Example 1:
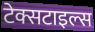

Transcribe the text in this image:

टेक्सटाइल्स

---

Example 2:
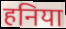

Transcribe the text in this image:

हनिया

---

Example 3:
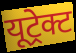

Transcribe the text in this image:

यूट्रेक्ट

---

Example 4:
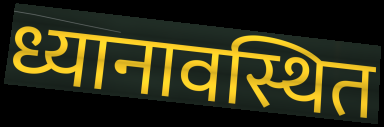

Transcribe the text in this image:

ध्यानावस्थित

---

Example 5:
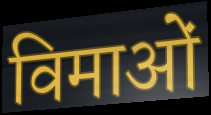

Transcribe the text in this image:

विमाओं